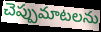
చెప్పుమాటలను